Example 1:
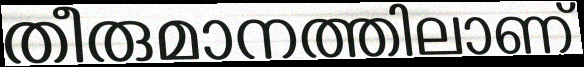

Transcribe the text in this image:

തീരുമാനത്തിലാണ്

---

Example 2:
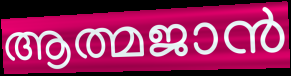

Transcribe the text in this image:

ആത്മജാൻ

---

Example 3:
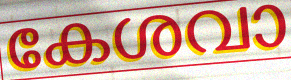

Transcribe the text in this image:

കേശവാ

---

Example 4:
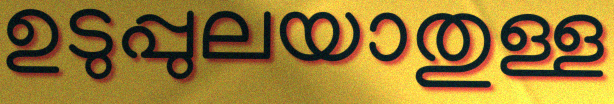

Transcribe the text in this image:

ഉടുപ്പുലയാതുള്ള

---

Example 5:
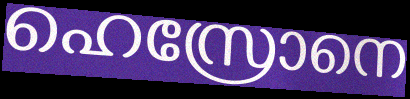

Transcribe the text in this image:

ഹെസ്രോനെ